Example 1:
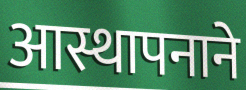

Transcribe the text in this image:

आस्थापनाने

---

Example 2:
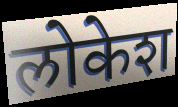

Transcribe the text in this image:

लोकेश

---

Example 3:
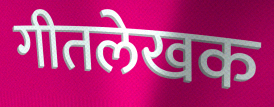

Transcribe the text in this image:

गीतलेखक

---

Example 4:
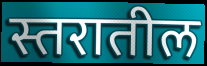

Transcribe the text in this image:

स्तरातील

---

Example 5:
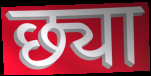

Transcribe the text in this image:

छ्या